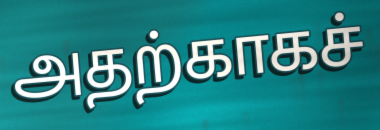
அதற்காகச்